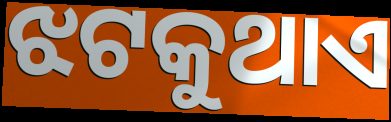
ଝଟକୁଥାଏ